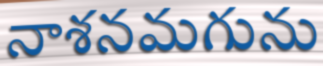
నాశనమగును